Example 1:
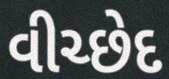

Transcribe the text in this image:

વીચ્છેદ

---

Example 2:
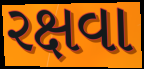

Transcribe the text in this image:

રક્ષવા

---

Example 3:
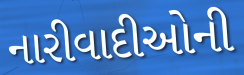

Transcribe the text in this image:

નારીવાદીઓની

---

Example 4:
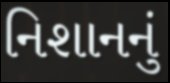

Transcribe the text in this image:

નિશાનનું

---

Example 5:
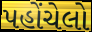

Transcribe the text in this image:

પહોંચેલો